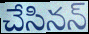
చేసినన్